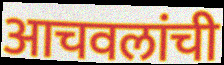
आचवलांची